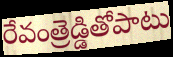
రేవంత్రెడ్డితోపాటు